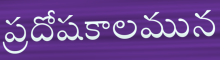
ప్రదోషకాలమున